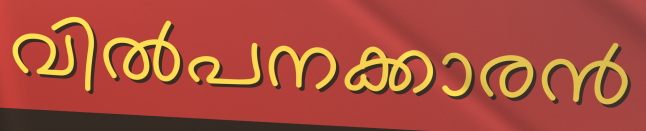
വിൽപനക്കാരൻ